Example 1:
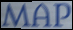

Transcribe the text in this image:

MAP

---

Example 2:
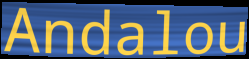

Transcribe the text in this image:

Andalou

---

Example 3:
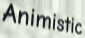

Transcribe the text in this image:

Animistic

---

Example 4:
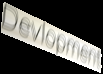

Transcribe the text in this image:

Devlopment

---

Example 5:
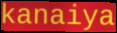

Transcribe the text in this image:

kanaiya